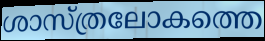
ശാസ്ത്രലോകത്തെ